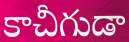
కాచీగుడా